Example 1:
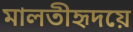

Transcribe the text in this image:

মালতীহৃদয়ে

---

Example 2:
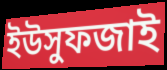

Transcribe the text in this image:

ইউসুফজাই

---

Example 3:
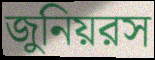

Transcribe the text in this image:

জুনিয়রস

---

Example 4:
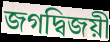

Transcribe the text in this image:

জগদ্বিজয়ী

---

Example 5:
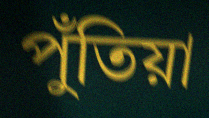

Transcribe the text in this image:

পুঁতিয়া